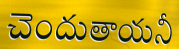
చెందుతాయనీ